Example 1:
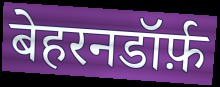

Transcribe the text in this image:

बेहरनडॉर्फ़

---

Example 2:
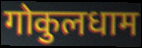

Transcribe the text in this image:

गोकुलधाम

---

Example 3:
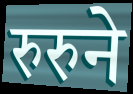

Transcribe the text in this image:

रुरुने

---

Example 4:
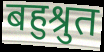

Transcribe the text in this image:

बहुश्रुत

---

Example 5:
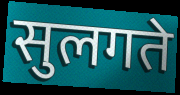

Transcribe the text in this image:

सुलगते